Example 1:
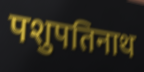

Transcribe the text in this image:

पशुपतिनाथ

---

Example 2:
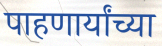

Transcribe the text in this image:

पाहणार्यांच्या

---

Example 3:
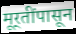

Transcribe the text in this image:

मूर्तींपासून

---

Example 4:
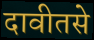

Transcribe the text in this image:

दावीतसे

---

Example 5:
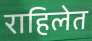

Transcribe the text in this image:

राहिलेत